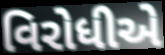
વિરોધીએ